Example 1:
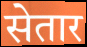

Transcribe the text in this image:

सेतार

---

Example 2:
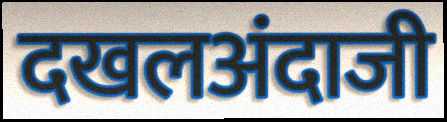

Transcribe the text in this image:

दखलअंदाजी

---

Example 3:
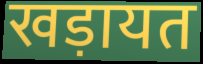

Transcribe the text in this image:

खड़ायत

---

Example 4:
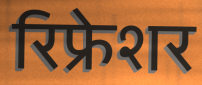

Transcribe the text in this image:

रिफ्रेशर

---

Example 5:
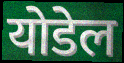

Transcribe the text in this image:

योडेल